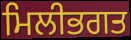
ਮਿਲੀਭਗਤ